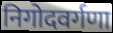
निगोदवर्गणा